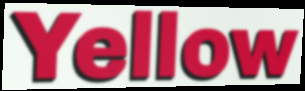
Yellow